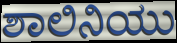
ಶಾಲಿನಿಯು